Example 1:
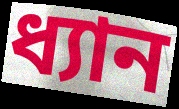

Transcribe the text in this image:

ধ্যান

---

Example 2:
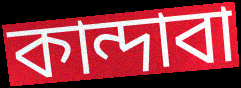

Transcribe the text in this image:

কান্দাবা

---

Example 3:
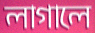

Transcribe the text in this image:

লাগালে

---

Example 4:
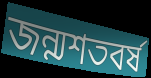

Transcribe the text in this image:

জন্মশতবর্ষ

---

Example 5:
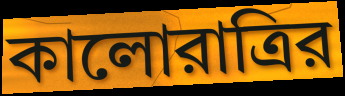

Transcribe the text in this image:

কালোরাত্রির